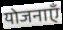
योजनाएँ